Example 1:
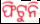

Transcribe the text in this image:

ଫିଟୁନି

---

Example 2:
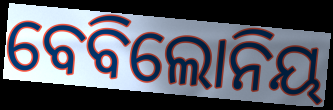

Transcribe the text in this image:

ବେବିଲୋନିୟ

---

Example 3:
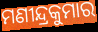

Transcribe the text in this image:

ମଣୀନ୍ଦ୍ରକୁମାର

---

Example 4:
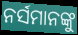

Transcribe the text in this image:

ନର୍ସମାନଙ୍କୁ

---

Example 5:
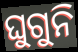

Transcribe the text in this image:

ଘୁଗୁନି